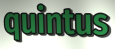
quintus